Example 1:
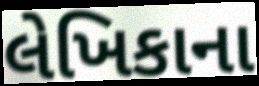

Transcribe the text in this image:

લેખિકાના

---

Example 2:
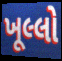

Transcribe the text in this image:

ખૂલ્લો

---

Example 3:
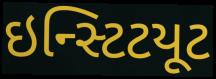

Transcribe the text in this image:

ઇન્સ્ટિટયૂટ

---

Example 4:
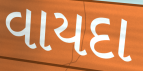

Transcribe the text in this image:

વાયદા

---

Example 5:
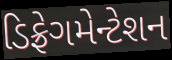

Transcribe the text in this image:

ડિફ્રેગમેન્ટેશન